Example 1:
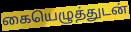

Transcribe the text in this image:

கையெழுத்துடன்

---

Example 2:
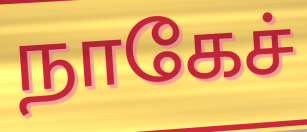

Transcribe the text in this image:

நாகேச்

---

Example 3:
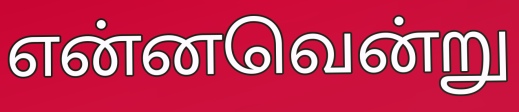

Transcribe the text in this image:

என்னவென்று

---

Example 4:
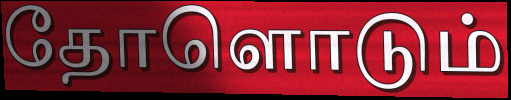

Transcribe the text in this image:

தோளொடும்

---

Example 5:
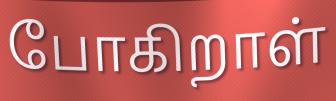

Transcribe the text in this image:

போகிறாள்